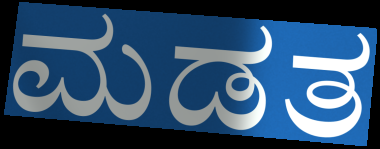
ಮಡತ